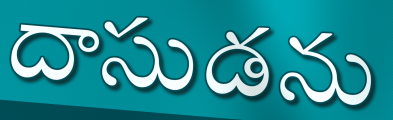
దాసుడను